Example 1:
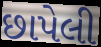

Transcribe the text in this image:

છાપેલી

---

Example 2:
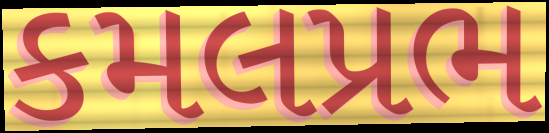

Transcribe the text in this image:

કમલપ્રભ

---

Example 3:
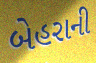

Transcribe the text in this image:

બેહરાની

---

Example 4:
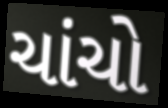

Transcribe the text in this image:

ચાંચો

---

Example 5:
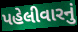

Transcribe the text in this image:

પહેલીવારનું